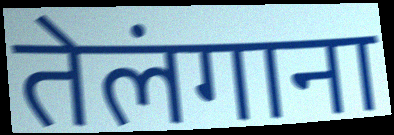
तेलंगाना